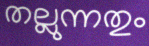
തല്ലുന്നതും